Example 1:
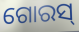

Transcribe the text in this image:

ଗୋରସ୍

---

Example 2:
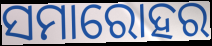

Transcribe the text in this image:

ସମାରୋହର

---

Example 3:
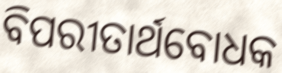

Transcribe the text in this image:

ବିପରୀତାର୍ଥବୋଧକ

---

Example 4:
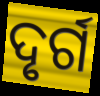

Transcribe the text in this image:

ଦୃର୍ଗ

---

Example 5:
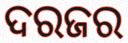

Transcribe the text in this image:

ଦରଜର